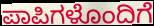
ಪಾಪಿಗಳೊಂದಿಗೆ